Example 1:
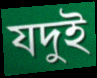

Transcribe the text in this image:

যদুই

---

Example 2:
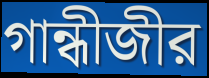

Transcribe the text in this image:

গান্ধীজীর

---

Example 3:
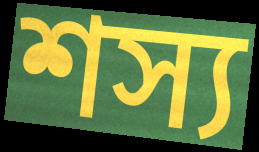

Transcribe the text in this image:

শস্য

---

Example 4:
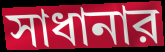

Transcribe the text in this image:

সাধানার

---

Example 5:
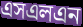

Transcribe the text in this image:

এসএলএন